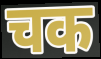
चक